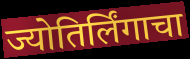
ज्योतिर्लिंगाचा